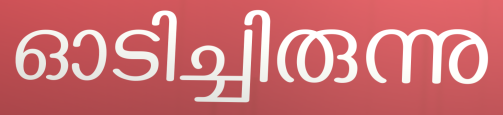
ഓടിച്ചിരുന്നു